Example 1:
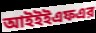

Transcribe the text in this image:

আইইইএফএর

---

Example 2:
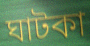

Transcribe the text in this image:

ঘাটকা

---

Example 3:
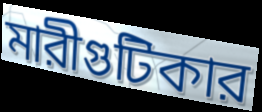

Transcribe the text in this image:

মারীগুটিকার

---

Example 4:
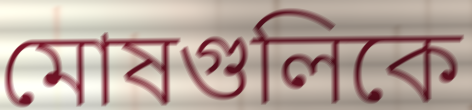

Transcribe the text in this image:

মোষগুলিকে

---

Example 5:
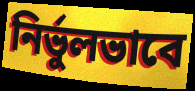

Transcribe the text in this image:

নির্ভুলভাবে